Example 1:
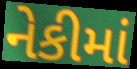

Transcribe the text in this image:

નેકીમાં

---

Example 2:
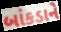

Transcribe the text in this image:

બાંકડાને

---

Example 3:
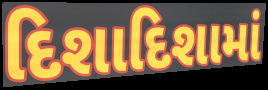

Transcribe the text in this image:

દિશાદિશામાં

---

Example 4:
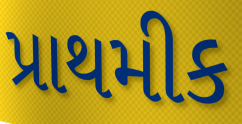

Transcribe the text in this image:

પ્રાથમીક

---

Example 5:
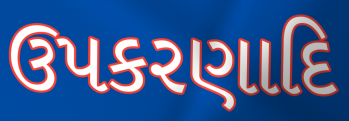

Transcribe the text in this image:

ઉપકરણાદિ